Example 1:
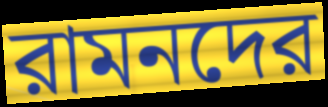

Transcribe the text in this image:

রামনদের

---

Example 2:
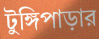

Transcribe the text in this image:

টুঙ্গিপাড়ার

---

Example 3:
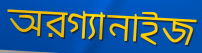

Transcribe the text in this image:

অরগ্যানাইজ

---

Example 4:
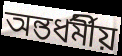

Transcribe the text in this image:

অন্তর্ধর্মীয়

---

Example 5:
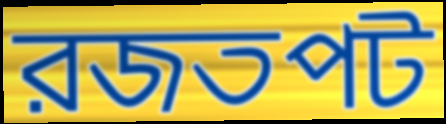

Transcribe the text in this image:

রজতপট